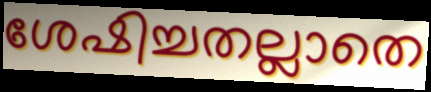
ശേഷിച്ചതല്ലാതെ